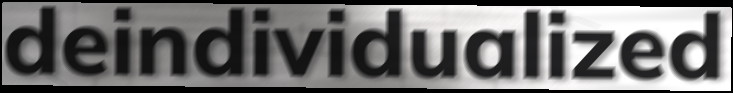
deindividualized